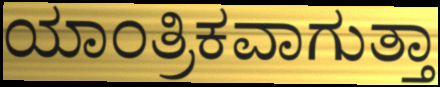
ಯಾಂತ್ರಿಕವಾಗುತ್ತಾ